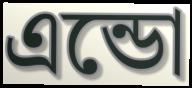
এন্ডো